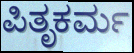
ಪಿತೃಕರ್ಮ